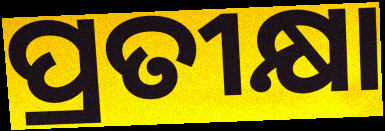
ପ୍ରତୀକ୍ଷା